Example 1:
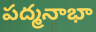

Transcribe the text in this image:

పద్మనాభా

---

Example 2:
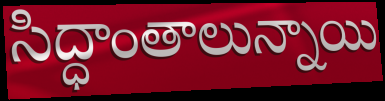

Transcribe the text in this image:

సిద్ధాంతాలున్నాయి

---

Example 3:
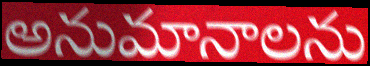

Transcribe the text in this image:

అనుమానాలను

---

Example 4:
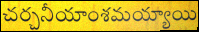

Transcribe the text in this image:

చర్చనీయాంశమయ్యాయి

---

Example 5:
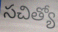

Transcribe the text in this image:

సచిత్యో